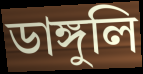
ডাঙ্গুলি